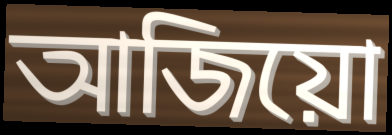
আজিয়ো